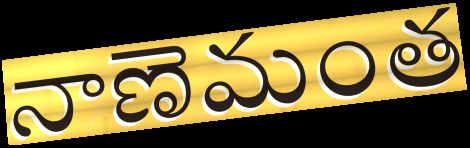
నాణెమంత